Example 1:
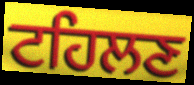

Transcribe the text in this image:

ਟਹਿਲਣ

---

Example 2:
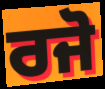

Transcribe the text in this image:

ਰਜੋ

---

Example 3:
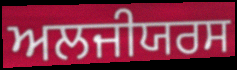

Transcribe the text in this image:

ਅਲਜੀਯਰਸ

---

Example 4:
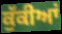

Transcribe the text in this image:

ਕੁੱਕੀਆਂ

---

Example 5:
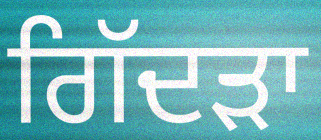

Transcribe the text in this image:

ਗਿੱਦੜਾ